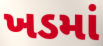
ખડમાં